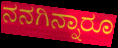
ನನಗಿನ್ನಾರೂ